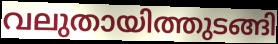
വലുതായിത്തുടങ്ങി